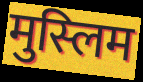
मुस्‍लिम